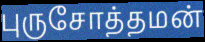
புருசோத்தமன்